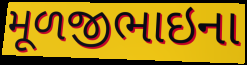
મૂળજીભાઇના